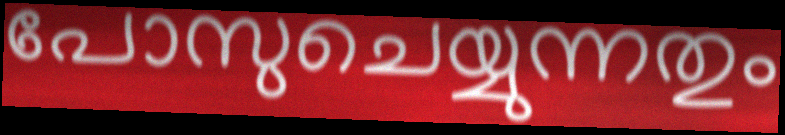
പോസുചെയ്യുന്നതും